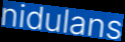
nidulans